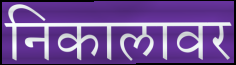
निकालावर